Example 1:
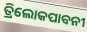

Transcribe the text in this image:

ତ୍ରିଲୋକପାବନୀ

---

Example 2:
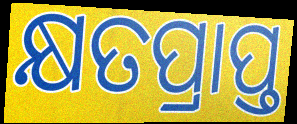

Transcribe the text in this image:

କ୍ଷତପ୍ରାପ୍ତ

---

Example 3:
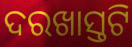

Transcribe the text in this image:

ଦରଖାସ୍ତଟି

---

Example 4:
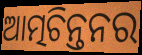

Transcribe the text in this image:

ଆତ୍ମଚିନ୍ତନର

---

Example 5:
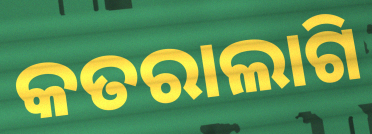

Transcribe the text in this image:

କତରାଲାଗି